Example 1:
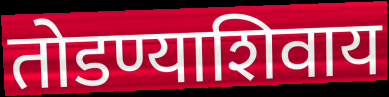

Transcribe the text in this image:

तोडण्याशिवाय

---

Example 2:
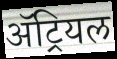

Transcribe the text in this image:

ॲट्रियल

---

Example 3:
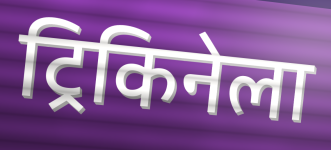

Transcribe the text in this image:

ट्रिकिनेला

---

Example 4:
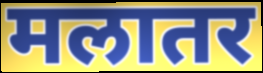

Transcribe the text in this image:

मलातर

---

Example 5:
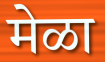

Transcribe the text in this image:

मेळा